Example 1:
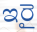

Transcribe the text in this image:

ఇరై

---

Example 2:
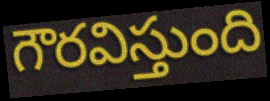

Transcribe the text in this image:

గౌరవిస్తుంది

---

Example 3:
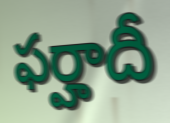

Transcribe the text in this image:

ఫర్హాదీ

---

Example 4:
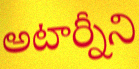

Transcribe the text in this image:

అటార్నీని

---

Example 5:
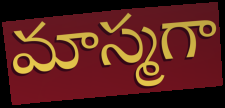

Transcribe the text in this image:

మాస్మగా